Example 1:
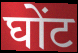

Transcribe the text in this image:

घोंट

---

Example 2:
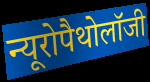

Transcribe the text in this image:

न्यूरोपैथोलॉजी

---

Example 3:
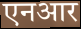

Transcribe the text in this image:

एनआर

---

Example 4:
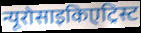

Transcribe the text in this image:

न्यूरोसाइकिएट्रिस्ट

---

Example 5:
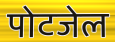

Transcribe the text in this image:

पोटजेल